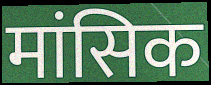
मांसिक